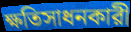
ক্ষতিসাধনকারী